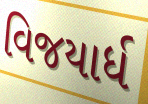
વિજયાર્ધ